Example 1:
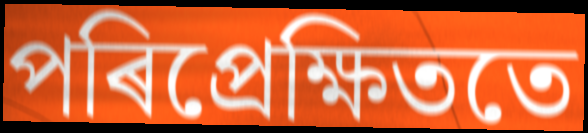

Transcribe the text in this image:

পৰিপ্ৰেক্ষিততে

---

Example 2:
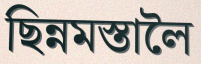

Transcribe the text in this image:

ছিন্নমস্তালৈ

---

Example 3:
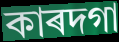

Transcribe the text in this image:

কাৰদগা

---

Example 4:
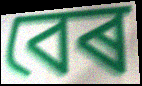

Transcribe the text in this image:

বেৰ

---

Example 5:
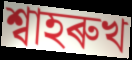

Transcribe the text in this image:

শ্বাহৰুখ